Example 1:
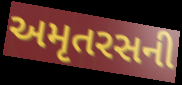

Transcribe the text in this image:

અમૃતરસની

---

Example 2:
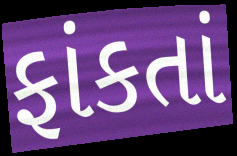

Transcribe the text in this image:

ફાંકતાં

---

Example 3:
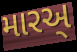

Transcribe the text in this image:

મારઅ્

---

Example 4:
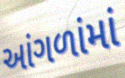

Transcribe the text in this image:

આંગળાંમાં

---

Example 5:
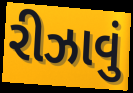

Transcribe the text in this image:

રીઝાવું